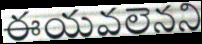
ఈయవలెనని